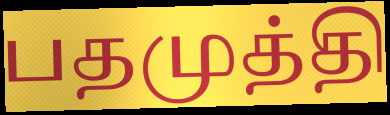
பதமுத்தி